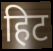
हिट